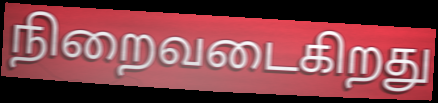
நிறைவடைகிறது